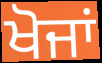
ਖੋਜਾਂ